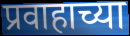
प्रवाहाच्या